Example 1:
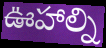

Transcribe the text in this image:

ఊహాల్ని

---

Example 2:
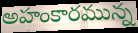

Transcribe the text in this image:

అహంకారమున్న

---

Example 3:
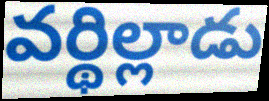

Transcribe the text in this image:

వర్థిల్లాడు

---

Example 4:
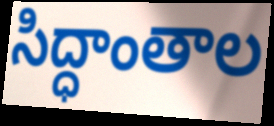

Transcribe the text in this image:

సిద్ధాంతాల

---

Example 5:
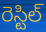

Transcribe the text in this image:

రెస్టిల్